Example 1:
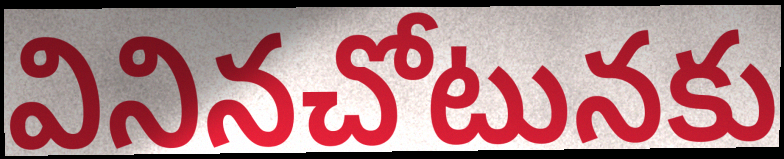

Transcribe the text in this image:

వినినచోటునకు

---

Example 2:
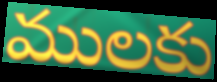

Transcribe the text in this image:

ములకు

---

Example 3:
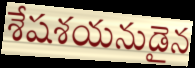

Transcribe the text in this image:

శేషశయనుడైన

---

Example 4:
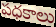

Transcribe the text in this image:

పధకాలు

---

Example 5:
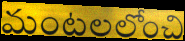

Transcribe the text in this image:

మంటలలోంచి